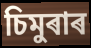
চিমুৰাৰ